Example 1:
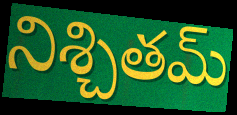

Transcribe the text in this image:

నిశ్చితమ్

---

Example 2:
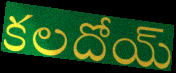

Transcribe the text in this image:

కలదోయ్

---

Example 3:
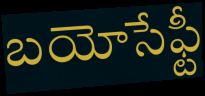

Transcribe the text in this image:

బయోసేఫ్టీ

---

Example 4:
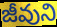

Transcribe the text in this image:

జీవుని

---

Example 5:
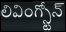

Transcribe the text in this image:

లివింగ్స్టోన్